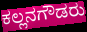
ಕಲ್ಲನಗೌಡರು